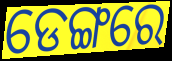
ଡେଙ୍ଗରେ